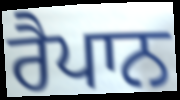
ਰੈਪਾਨ